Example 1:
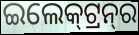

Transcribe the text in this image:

ଇଲେକ୍‍ଟ୍ରନ୍‍ର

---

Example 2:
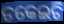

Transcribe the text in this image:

ଡକେଇଚି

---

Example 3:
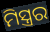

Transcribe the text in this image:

ମିସ୍ତ୍ରର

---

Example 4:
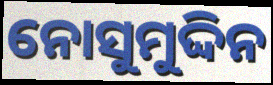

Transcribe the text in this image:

ନୋସୁମୁଦ୍ଦିନ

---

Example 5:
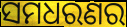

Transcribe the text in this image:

ସମଧରଣର